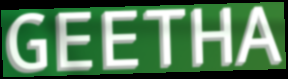
GEETHA